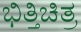
ಭಿತ್ತಿಚಿತ್ರ